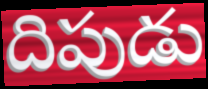
దిపుడు